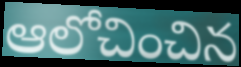
ఆలోచించిన